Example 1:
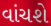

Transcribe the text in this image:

વાંચશે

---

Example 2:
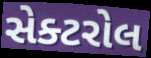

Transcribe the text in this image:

સેક્ટરોલ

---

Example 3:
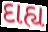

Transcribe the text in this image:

દાહ્ય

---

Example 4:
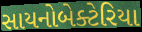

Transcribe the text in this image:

સાયનોબેક્ટેરિયા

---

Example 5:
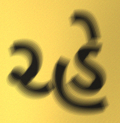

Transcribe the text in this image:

ચ્હે